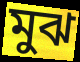
মুঝ